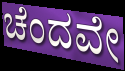
ಚೆಂದವೇ